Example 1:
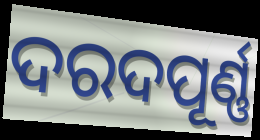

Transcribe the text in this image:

ଦରଦପୂର୍ଣ୍ଣ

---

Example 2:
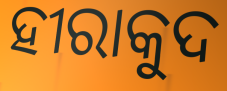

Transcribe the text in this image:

ହୀରାକୁଦ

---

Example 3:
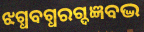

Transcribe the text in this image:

ଝଗ୍ଧବଗ୍ଧରଗ୍ଦଜ୍ଞବଦ୍ଭ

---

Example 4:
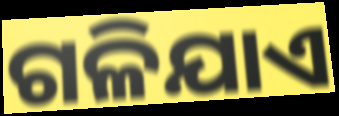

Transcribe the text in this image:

ଗଳିଯାଏ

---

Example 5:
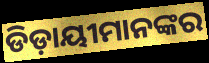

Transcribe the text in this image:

ଡିଡ଼ାୟୀମାନଙ୍କର